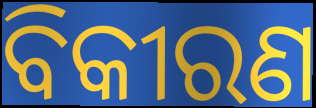
ବିକୀରଣ